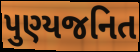
પુણ્યજનિત